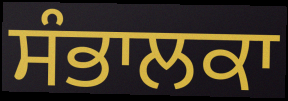
ਸੰਭਾਲਕਾ